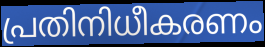
പ്രതിനിധീകരണം